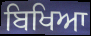
ਬਿਖਿਆ